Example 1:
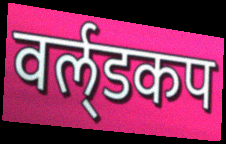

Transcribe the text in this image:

वर्ल्डकप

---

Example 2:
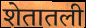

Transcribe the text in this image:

शेतातली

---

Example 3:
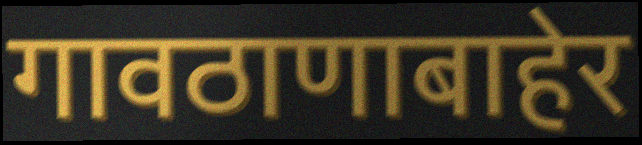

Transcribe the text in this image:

गावठाणाबाहेर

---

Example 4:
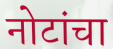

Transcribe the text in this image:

नोटांचा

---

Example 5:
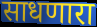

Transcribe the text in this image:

साधणारा